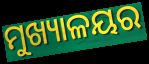
ମୁଖ୍ୟାଳୟର